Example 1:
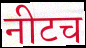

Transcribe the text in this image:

नीटच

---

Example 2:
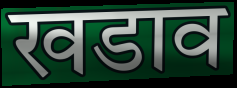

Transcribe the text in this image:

खडाव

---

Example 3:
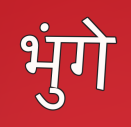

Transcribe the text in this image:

भुंगे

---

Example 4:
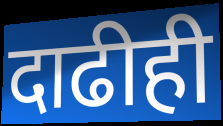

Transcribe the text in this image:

दाढीही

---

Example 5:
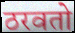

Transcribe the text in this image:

ठरवतो